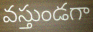
వస్తుండగా